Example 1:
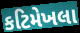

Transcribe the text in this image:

કટિમેખલા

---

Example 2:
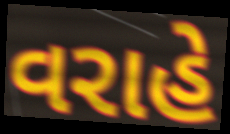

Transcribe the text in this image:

વરાહે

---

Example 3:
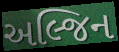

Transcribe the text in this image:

અલ્જિન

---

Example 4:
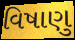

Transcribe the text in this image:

વિષાણુ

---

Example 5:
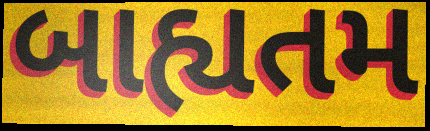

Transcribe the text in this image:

બાહ્યતમ